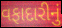
વફાદારીનું